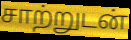
சாற்றுடன்